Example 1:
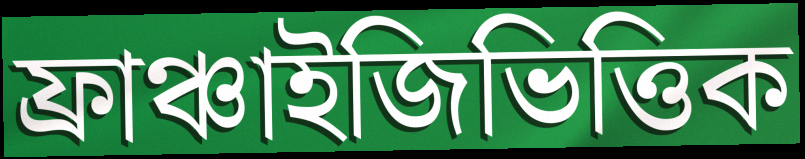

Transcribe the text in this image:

ফ্রাঞ্চাইজিভিত্তিক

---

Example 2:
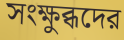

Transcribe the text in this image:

সংক্ষুব্ধদের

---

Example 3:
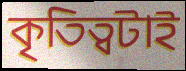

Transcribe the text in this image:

কৃতিত্বটাই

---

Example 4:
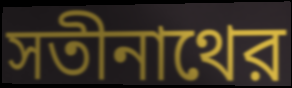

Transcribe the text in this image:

সতীনাথের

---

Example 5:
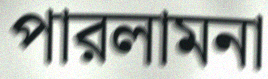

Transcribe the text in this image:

পারলামনা